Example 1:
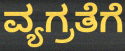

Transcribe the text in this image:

ವ್ಯಗ್ರತೆಗೆ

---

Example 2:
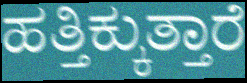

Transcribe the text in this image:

ಹತ್ತಿಕ್ಕುತ್ತಾರೆ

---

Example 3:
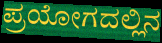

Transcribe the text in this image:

ಪ್ರಯೋಗದಲ್ಲಿನ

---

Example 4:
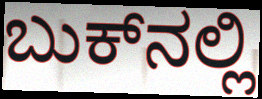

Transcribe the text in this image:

ಬುಕ್‌ನಲ್ಲಿ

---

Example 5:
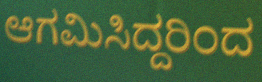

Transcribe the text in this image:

ಆಗಮಿಸಿದ್ದರಿಂದ